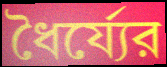
ধৈর্য্যের